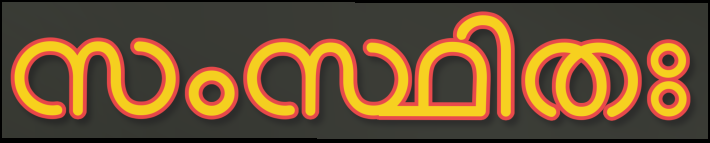
സംസ്ഥിതഃ